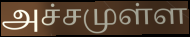
அச்சமுள்ள